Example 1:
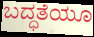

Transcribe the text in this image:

ಬದ್ಧತೆಯೂ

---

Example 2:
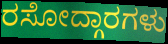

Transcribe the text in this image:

ರಸೋದ್ಗಾರಗಳು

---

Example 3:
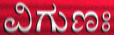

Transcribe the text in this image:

ವಿಗುಣಃ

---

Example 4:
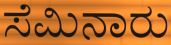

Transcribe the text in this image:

ಸೆಮಿನಾರು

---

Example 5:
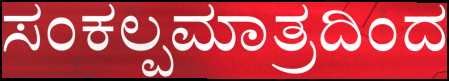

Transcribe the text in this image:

ಸಂಕಲ್ಪಮಾತ್ರದಿಂದ